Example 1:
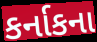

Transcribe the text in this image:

કર્નાકના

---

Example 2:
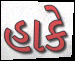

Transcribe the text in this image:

હાકે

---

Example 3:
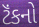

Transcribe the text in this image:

ટૅંકનો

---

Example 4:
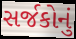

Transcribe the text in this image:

સર્જકોનું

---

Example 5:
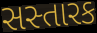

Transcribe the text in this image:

સસ્તારક